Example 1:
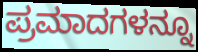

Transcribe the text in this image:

ಪ್ರಮಾದಗಳನ್ನೂ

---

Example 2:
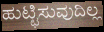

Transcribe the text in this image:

ಹುಟ್ಟಿಸುವುದಿಲ್ಲ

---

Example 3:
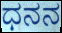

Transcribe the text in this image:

ಧನನ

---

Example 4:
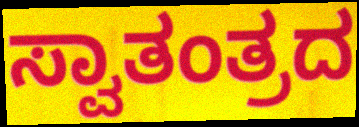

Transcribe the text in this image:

ಸ್ವಾತಂತ್ರದ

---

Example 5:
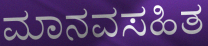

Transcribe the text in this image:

ಮಾನವಸಹಿತ